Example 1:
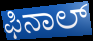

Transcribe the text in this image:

ಫಿನಾಲ್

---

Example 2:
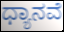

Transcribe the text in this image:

ಧ್ಯಾನವೆ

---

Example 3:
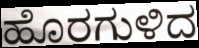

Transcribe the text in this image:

ಹೊರಗುಳಿದ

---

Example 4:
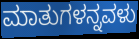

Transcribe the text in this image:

ಮಾತುಗಳನ್ನವಳು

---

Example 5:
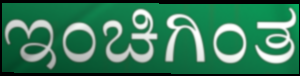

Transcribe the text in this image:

ಇಂಚಿಗಿಂತ